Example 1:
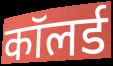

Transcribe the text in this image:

कॉलर्ड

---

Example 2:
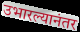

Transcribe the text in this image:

उभारल्यानंतर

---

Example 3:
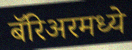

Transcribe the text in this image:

बॅरिअरमध्ये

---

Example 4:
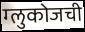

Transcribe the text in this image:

ग्लुकोजची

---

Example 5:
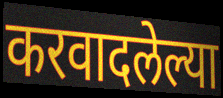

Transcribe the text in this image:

करवादलेल्या